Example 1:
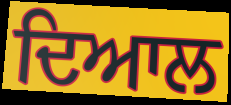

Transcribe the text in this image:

ਦਿਆਲ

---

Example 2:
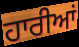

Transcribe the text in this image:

ਹਾਰੀਆਂ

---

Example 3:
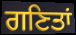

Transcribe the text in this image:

ਗਣਿਤਾਂ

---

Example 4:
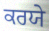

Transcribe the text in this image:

ਕਰਯੇ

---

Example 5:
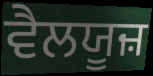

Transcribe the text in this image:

ਵੈਲਯੂਜ਼